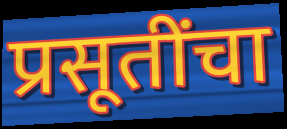
प्रसूतींचा